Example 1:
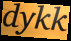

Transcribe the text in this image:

dykk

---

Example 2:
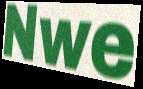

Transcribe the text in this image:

Nwe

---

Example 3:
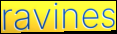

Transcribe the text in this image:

ravines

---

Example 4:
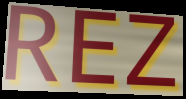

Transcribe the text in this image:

REZ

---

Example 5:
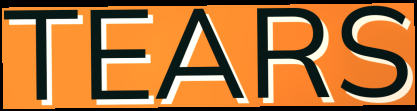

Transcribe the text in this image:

TEARS